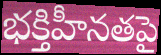
భక్తిహీనతపై